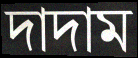
দাদাম